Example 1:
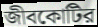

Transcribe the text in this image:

জীবকোটির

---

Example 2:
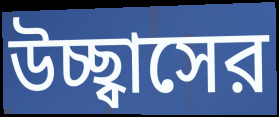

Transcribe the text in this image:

উচ্ছ্বাসের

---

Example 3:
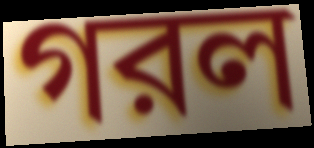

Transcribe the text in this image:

গরল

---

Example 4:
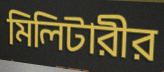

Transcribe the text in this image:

মিলিটারীর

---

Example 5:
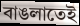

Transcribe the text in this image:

বাঙলাতেই